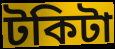
টকিটা